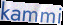
kammi